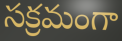
సక్రమంగా